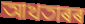
আখতাৰৰ